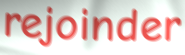
rejoinder